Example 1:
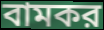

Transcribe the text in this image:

বামকর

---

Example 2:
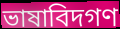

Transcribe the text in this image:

ভাষাবিদগণ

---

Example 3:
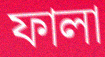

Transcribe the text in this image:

ফালা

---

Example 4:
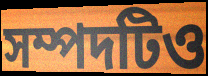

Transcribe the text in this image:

সম্পদটিও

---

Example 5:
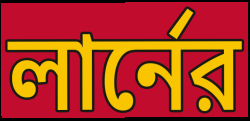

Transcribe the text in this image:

লার্নের